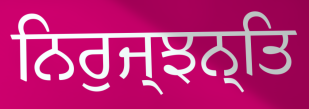
ਨਿਰੁਜ੍ਝਨ੍ਤਿ